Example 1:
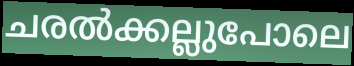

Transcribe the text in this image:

ചരൽക്കല്ലുപോലെ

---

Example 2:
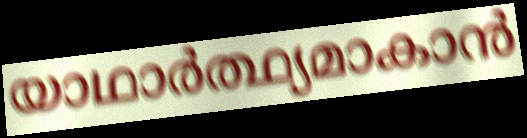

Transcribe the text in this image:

യാഥാർത്ഥ്യമാകാൻ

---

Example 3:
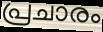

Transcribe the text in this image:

പ്രചാരം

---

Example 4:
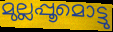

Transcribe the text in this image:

മുല്ലപ്പൂമൊട്ടു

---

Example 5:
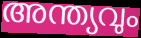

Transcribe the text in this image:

അന്ത്യവും